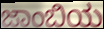
ಜಾಂಬಿಯ